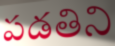
పడతిని